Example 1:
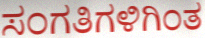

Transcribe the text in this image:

ಸಂಗತಿಗಳಿಗಿಂತ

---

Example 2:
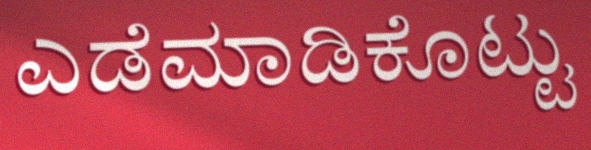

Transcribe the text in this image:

ಎಡೆಮಾಡಿಕೊಟ್ಟು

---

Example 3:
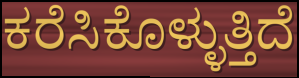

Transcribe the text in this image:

ಕರೆಸಿಕೊಳ್ಳುತ್ತಿದೆ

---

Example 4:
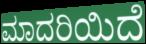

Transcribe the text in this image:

ಮಾದರಿಯಿದೆ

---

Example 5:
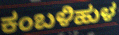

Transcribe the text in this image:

ಕಂಬಳಿಹುಳ